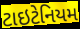
ટાઇટેનિયમ